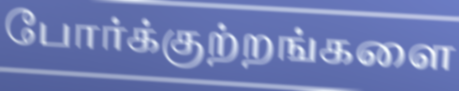
போர்க்குற்றங்களை